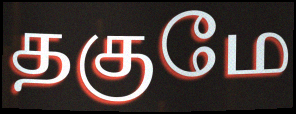
தகுமே